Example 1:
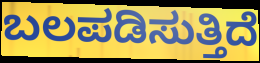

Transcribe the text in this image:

ಬಲಪಡಿಸುತ್ತಿದೆ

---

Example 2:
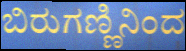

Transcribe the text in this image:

ಬಿರುಗಣ್ಣಿನಿಂದ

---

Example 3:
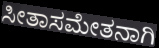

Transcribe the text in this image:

ಸೀತಾಸಮೇತನಾಗಿ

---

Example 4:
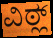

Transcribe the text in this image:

ವಿಠ್ಲ್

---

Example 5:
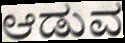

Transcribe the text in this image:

ಆಡುವ